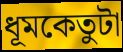
ধূমকেতুটা